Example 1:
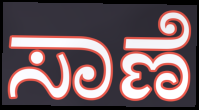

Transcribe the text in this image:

ಸಾಣೆ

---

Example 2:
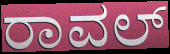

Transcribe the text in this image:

ರಾವಲ್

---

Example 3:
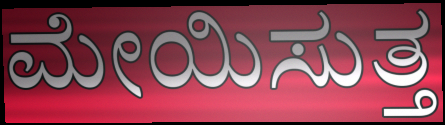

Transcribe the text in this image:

ಮೇಯಿಸುತ್ತ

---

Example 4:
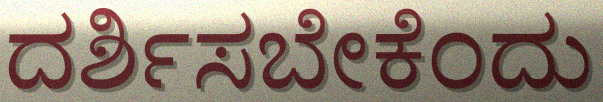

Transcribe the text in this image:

ದರ್ಶಿಸಬೇಕೆಂದು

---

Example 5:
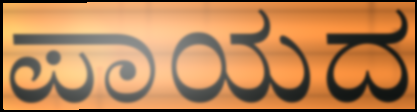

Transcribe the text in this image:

ಪಾಯದ